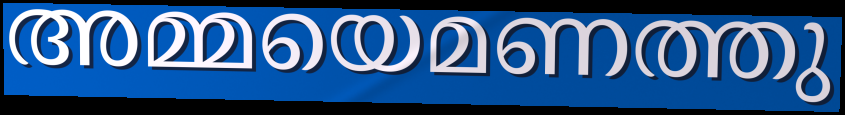
അമ്മയെമണത്തു